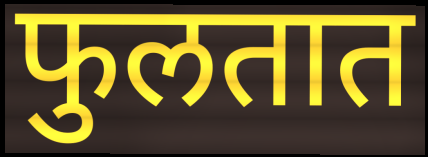
फुलतात